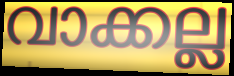
വാക്കല്ല